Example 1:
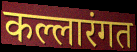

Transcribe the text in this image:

कल्लारंगत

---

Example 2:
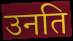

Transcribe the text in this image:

उनति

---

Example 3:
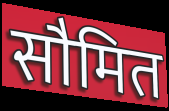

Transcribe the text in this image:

सौमित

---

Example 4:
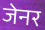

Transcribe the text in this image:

जेनर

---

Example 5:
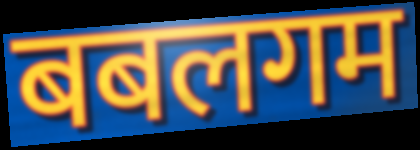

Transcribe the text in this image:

बबलगम